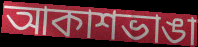
আকাশভাঙা